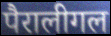
पैरालीगल